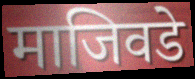
माजिवडे